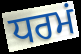
ਧਰਮਂ